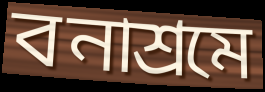
বনাশ্রমে